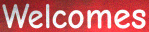
Welcomes